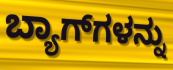
ಬ್ಯಾಗ್‌ಗಳನ್ನು